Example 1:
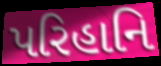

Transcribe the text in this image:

પરિહાનિ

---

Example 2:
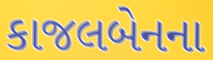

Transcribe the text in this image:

કાજલબેનના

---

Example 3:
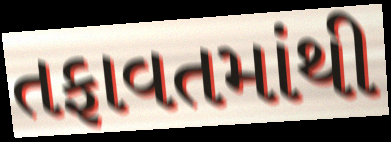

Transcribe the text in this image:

તફાવતમાંથી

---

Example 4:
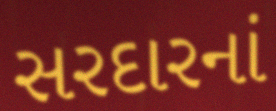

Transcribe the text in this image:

સરદારનાં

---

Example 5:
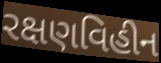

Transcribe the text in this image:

રક્ષણવિહીન